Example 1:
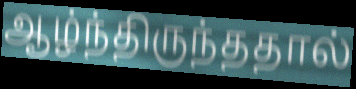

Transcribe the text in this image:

ஆழ்ந்திருந்ததால்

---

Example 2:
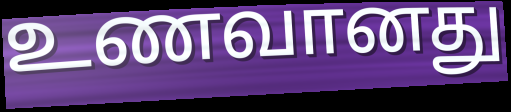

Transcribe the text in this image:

உணவானது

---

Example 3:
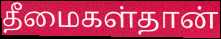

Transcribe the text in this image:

தீமைகள்தான்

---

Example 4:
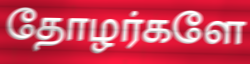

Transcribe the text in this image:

தோழர்களே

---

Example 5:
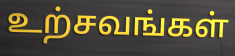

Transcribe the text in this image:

உற்சவங்கள்